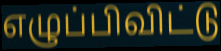
எழுப்பிவிட்டு